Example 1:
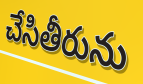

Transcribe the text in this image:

చేసితీరును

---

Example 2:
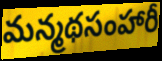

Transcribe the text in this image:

మన్మథసంహారీ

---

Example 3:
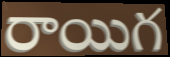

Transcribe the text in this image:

రాయిగ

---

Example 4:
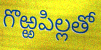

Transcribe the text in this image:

గొఱ్ఱపిల్లతో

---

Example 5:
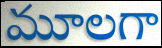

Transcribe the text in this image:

మూలగా